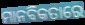
ମାନବିକତାରେ